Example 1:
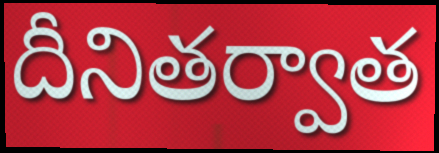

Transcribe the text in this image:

దీనితర్వాత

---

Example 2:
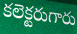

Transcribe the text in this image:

కలెక్టరుగారు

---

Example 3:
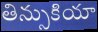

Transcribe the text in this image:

తిన్సుకియా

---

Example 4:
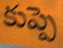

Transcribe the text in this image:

కుప్పె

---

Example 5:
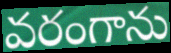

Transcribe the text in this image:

వరంగాను